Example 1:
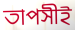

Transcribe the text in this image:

তাপসীই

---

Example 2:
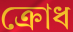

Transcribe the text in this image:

ক্রোধ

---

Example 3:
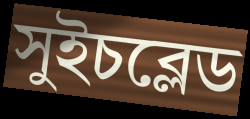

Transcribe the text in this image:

সুইচব্লেড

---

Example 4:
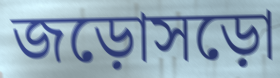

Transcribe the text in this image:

জড়োসড়ো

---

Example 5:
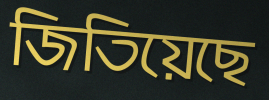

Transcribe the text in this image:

জিতিয়েছে